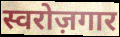
स्वरोज़गार